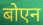
बोएन